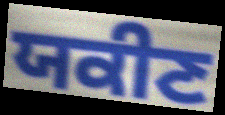
ਯਕੀਣ